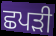
ਛਪੜੀ